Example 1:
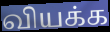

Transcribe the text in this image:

வியக்க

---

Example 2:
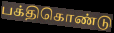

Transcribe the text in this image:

பக்திகொண்டு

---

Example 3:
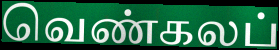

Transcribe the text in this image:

வெண்கலப்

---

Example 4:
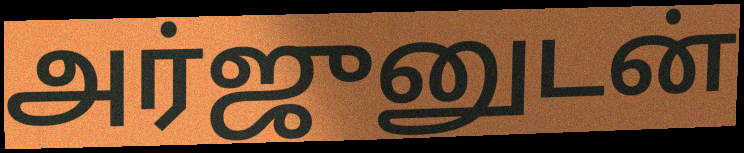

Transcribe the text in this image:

அர்ஜுனுடன்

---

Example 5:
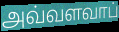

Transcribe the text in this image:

அவ்வளவாப்